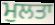
ਮੁਲਤਾ